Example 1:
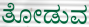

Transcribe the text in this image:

ತೋಡುವ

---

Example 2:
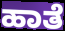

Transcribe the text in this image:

ಹಾತೆ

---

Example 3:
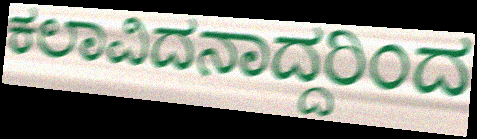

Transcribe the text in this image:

ಕಲಾವಿದನಾದ್ದರಿಂದ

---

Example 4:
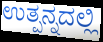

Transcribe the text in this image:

ಉತ್ಪನ್ನದಲ್ಲಿ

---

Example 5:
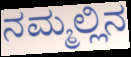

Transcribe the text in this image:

ನಮ್ಮಲ್ಲಿನ